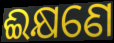
ଈକ୍ଷଣେ